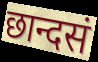
छान्दसं